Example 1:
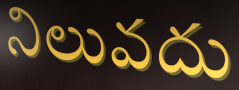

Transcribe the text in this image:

నిలువదు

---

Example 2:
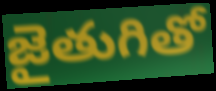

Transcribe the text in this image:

జైతుగితో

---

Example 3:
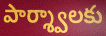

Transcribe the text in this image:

పార్శ్వాలకు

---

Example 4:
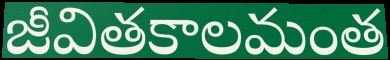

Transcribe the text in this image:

జీవితకాలమంత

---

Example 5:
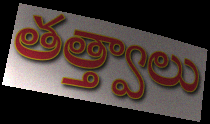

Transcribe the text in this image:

తత్త్వాలు